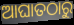
ଆଘାତଠାରୁ